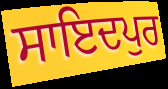
ਸਾਇਦਪੁਰ